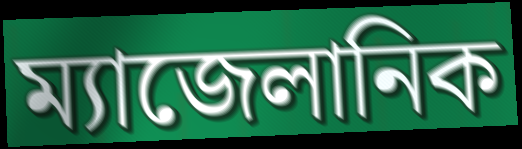
ম্যাজেলানিক